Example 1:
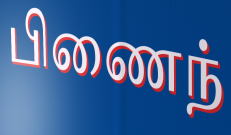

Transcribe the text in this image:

பிணைந்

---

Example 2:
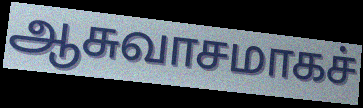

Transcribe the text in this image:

ஆசுவாசமாகச்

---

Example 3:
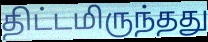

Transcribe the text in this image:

திட்டமிருந்தது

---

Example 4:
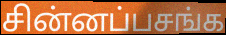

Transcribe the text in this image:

சின்னப்பசங்க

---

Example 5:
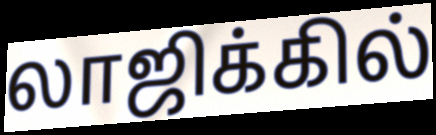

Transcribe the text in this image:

லாஜிக்கில்